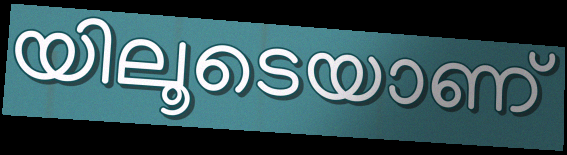
യിലൂടെയാണ്